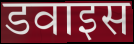
डवाइस